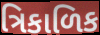
ત્રિકાળિક